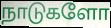
நாடுகளோ